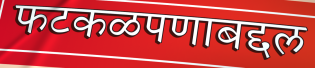
फटकळपणाबद्दल